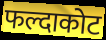
फल्दाकोट